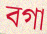
বগা